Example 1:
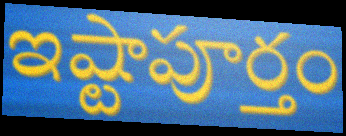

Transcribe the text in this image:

ఇష్టాపూర్తం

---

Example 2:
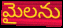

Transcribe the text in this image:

మైలను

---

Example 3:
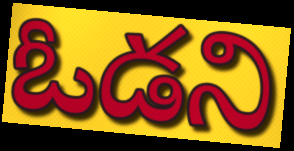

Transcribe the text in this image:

ఓడని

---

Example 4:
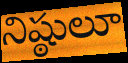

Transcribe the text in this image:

నిష్ఠులూ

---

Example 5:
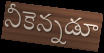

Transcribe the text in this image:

నీకెన్నడూ